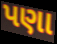
પણા